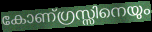
കോണ്ഗ്രസ്സിനെയും